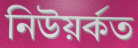
নিউয়ৰ্কত